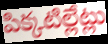
పిక్కటిల్లేట్లు